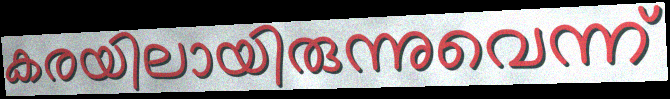
കരയിലായിരുന്നുവെന്ന്